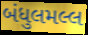
બંધુલમલ્લ